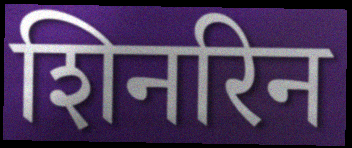
शिनरिन